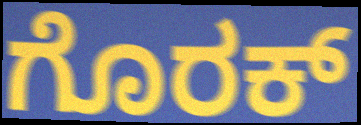
ಗೊರಕ್